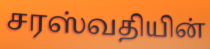
சரஸ்வதியின்